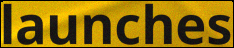
launches